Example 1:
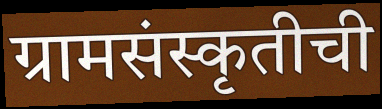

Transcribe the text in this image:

ग्रामसंस्कृतीची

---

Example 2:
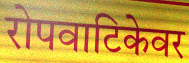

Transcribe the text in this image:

रोपवाटिकेवर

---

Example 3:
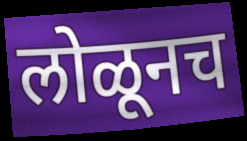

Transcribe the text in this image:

लोळूनच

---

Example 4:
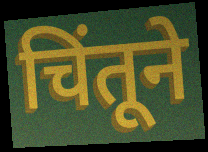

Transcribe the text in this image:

चिंतूने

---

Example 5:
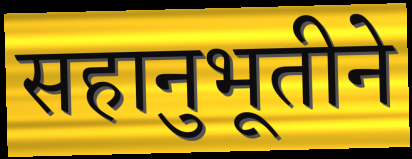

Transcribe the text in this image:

सहानुभूतीने